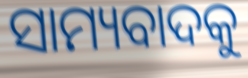
ସାମ୍ୟବାଦକୁ